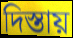
দিস্তায়